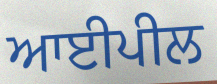
ਆਈਪੀਲ